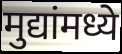
मुद्यांमध्ये